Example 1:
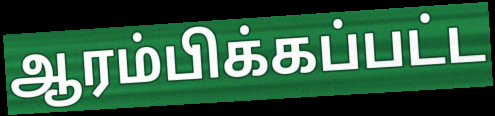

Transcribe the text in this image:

ஆரம்பிக்கப்பட்ட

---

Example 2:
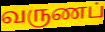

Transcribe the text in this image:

வருணப்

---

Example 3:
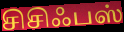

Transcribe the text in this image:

சிசிஃபஸ்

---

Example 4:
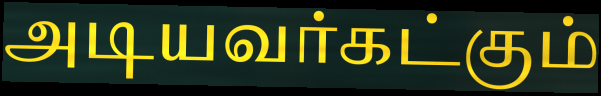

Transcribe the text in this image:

அடியவர்கட்கும்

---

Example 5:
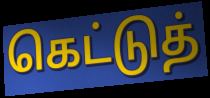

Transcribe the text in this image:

கெட்டுத்